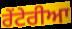
ਰੇਂਟੇਰੀਆ